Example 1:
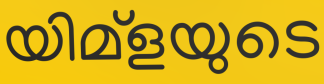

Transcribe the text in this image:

യിമ്ളയുടെ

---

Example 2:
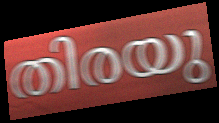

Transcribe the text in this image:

തിരയു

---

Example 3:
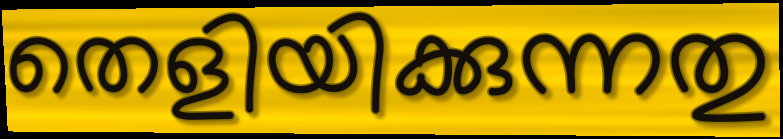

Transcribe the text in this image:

തെളിയിക്കുന്നതു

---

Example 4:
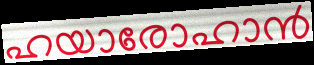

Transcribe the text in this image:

ഹയാരോഹാൻ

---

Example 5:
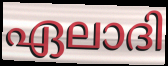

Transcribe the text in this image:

ഏലാദി